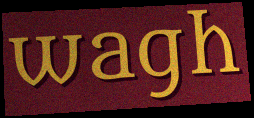
wagh